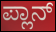
ಪ್ಲಾನ್